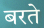
बरते